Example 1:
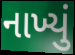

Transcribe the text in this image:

નાખ્યું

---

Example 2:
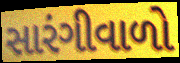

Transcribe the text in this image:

સારંગીવાળો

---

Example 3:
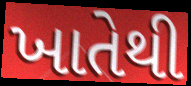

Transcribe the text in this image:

ખાતેથી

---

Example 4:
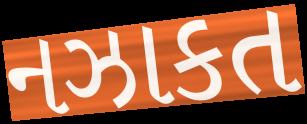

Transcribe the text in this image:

નઝાકત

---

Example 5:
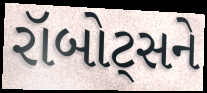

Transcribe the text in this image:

રૉબોટ્સને